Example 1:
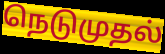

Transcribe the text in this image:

நெடுமுதல்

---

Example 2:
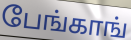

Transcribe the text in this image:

பேங்காங்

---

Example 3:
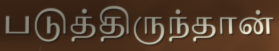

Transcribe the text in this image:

படுத்திருந்தான்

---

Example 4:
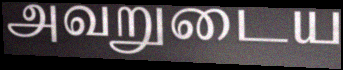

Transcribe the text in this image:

அவறுடைய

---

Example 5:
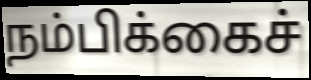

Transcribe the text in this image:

நம்பிக்கைச்